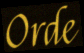
Orde